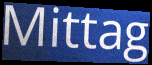
Mittag